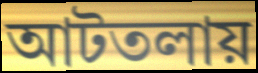
আটতলায়